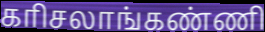
கரிசலாங்கண்ணி